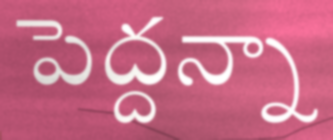
పెద్దన్నా